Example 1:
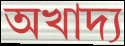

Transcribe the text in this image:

অখাদ্য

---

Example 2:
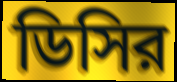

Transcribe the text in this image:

ডিসির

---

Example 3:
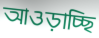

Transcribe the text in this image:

আওড়াচ্ছি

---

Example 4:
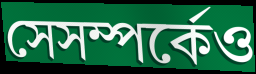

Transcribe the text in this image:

সেসম্পর্কেও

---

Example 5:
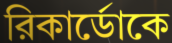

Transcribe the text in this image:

রিকার্ডোকে